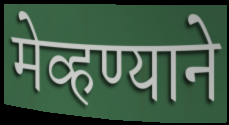
मेव्हण्याने